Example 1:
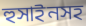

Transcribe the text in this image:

হুসাইনসহ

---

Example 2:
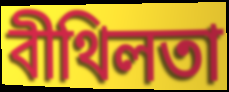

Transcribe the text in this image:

বীথিলতা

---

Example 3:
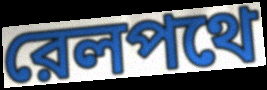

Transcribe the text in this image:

রেলপথে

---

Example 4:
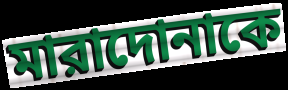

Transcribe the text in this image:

মারাদোনাকে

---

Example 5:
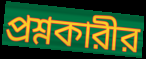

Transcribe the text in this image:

প্রশ্নকারীর